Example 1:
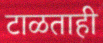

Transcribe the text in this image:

टाळताही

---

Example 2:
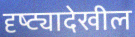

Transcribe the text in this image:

दृष्ट्यादेखील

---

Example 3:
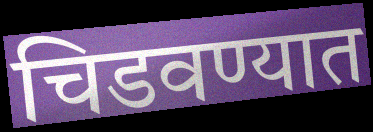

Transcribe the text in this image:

चिडवण्यात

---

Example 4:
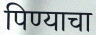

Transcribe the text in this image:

पिण्याचा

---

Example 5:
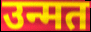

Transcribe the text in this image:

उन्मत